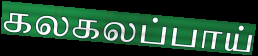
கலகலப்பாய்